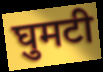
घुमटी